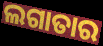
ଲଗାତାର